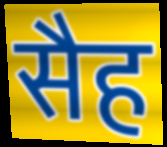
सैह